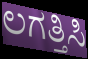
ಲಗತ್ತಿಸಿ